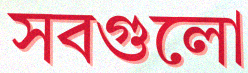
সবগুলো